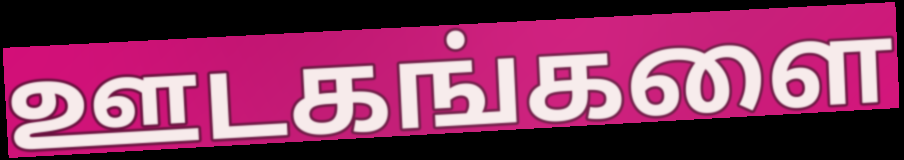
ஊடகங்களை